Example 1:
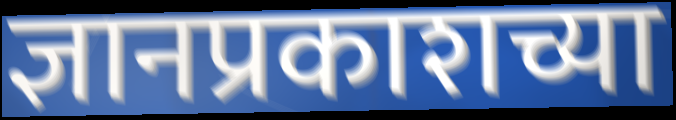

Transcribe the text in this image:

ज्ञानप्रकाशच्या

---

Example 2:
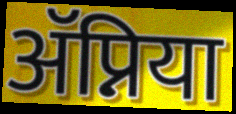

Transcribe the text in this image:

ॲप्निया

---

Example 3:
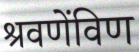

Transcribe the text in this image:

श्रवणेंविण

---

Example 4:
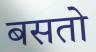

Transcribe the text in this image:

बसतो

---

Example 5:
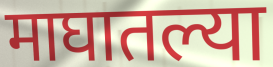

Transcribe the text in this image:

माघातल्या